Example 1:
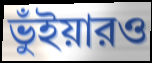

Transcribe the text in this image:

ভুঁইয়ারও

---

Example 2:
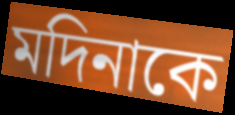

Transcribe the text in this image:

মদিনাকে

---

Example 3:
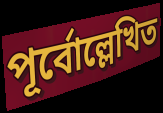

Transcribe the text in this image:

পূর্বোল্লেখিত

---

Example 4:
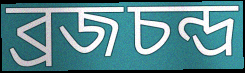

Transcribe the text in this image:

ব্রজচন্দ্র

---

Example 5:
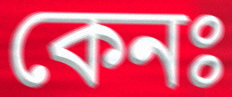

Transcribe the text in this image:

কেনঃ